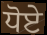
ਧੋਏ